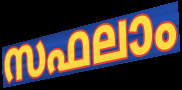
സഫലാം